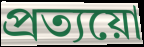
প্ৰত্যয়ো